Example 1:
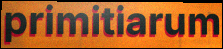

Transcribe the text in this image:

primitiarum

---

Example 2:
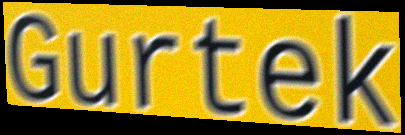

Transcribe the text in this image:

Gurtek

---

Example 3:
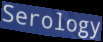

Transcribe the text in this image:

Serology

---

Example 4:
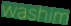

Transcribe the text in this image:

washim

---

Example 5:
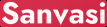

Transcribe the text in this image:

Sanvasi